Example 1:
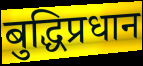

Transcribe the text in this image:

बुद्धिप्रधान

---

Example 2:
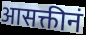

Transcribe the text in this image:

आसक्तीनं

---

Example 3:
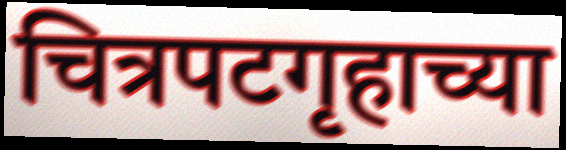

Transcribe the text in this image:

चित्रपटगृहाच्या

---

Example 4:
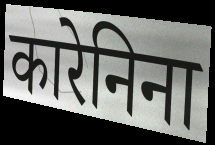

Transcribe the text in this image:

कारेनिना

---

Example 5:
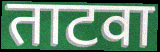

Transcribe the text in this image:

ताटवा